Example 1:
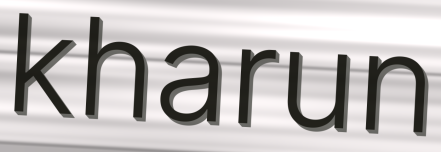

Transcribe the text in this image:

kharun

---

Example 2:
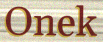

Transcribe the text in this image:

Onek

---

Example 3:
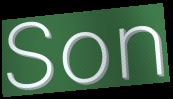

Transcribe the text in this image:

Son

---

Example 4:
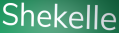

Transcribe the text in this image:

Shekelle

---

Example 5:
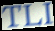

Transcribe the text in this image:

TLI